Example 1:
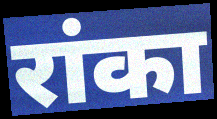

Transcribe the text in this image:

रांका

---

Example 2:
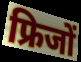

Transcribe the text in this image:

फ्रिजों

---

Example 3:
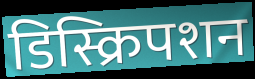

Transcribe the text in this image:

डिस्क्रिपशन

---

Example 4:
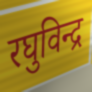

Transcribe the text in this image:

रघुविन्द्र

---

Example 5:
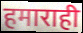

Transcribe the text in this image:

हमाराही